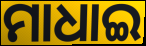
ମାଧାଇ